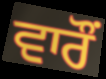
ਵਾਰੌਂ